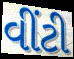
વીંટી